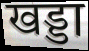
खड्डा